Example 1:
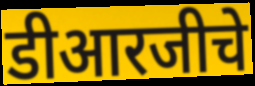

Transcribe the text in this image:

डीआरजीचे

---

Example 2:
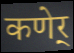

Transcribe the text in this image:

कणेर्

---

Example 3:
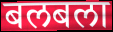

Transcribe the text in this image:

बलबला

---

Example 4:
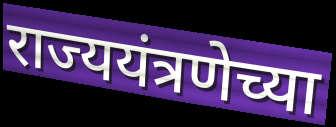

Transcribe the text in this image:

राज्ययंत्रणेच्या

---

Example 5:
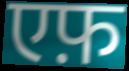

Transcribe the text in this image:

एफ़